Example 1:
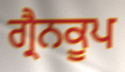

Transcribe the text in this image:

ਗ੍ਰੈਨਕੂਪ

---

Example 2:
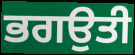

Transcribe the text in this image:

ਭਗਉਤੀ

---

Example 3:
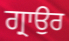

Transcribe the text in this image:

ਗ੍ਰਾਉਰ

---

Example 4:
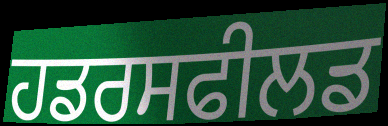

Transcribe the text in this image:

ਹਡਰਸਫੀਲਡ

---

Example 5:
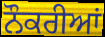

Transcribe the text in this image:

ਨੌਕਰੀਆਂ